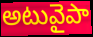
అటువైపా